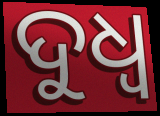
ଦୁଧ୍ଵ